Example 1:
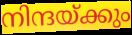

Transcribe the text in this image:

നിന്ദയ്ക്കും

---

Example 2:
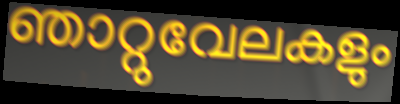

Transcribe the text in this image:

ഞാറ്റുവേലകളും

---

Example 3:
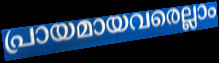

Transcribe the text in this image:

പ്രായമായവരെല്ലാം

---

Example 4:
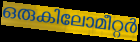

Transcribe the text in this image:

ഒരുകിലോമീറ്റർ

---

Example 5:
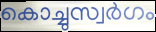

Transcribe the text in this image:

കൊച്ചുസ്വർഗം